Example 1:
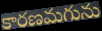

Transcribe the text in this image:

కారణమగును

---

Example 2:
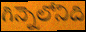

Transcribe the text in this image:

గిన్నెలోనిది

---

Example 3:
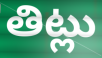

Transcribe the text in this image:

తిట్లు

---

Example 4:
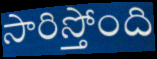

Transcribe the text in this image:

సారిస్తోంది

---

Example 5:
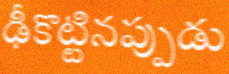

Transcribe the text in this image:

ఢీకొట్టినప్పుడు